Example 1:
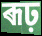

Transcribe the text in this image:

ৰূঢ়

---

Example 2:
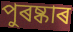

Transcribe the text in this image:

পুৰষ্কাৰ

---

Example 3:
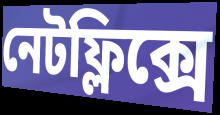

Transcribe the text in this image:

নেটফ্লিক্সে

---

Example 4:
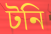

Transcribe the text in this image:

টনি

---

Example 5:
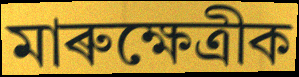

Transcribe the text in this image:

মাৰুক্ষেত্ৰীক